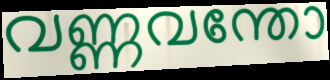
വണ്ണവന്തോ